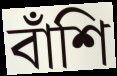
বাঁশি